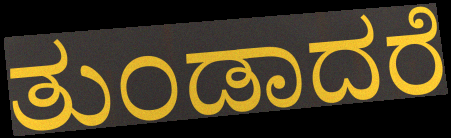
ತುಂಡಾದರೆ